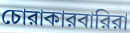
চোরাকারবারিরা